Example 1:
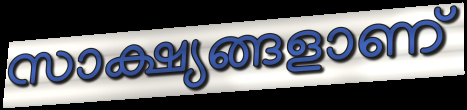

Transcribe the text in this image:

സാക്ഷ്യങ്ങളാണ്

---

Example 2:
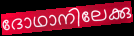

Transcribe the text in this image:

ദോഥാനിലേക്കു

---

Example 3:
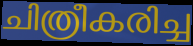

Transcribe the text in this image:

ചിത്രീകരിച്ച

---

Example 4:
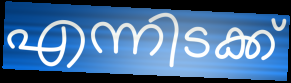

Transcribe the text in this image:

എന്നിടക്ക്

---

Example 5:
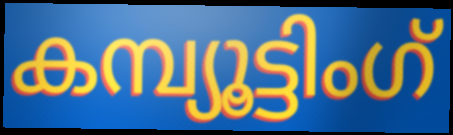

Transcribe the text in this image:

കമ്പ്യൂട്ടിംഗ്